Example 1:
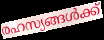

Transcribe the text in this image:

രഹസ്യങ്ങൾക്ക്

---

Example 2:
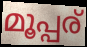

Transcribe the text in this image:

മൂപ്പര്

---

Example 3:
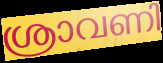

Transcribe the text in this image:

ശ്രാവണി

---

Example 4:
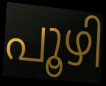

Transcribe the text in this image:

പൂഴി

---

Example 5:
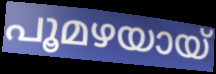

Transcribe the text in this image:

പൂമഴയായ്